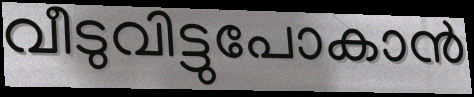
വീടുവിട്ടുപോകാൻ